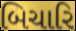
બિચારિ